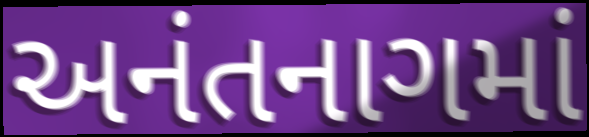
અનંતનાગમાં